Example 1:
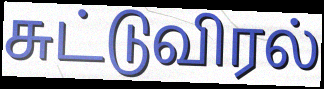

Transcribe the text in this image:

சுட்டுவிரல்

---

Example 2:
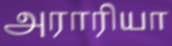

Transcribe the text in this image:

அராரியா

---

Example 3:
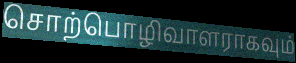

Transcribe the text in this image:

சொற்பொழிவாளராகவும்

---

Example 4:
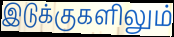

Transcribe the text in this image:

இடுக்குகளிலும்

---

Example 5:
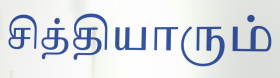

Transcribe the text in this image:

சித்தியாரும்